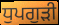
ਧੁਪਗੁੜੀ